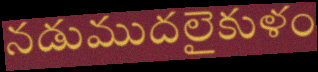
నడుముదలైకుళం